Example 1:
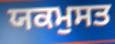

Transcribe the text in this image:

ਯਕਮੁਸਤ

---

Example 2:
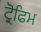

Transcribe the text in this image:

ਟ੍ਰੋਫਿਮ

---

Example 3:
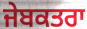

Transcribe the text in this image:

ਜੇਬਕਤਰਾ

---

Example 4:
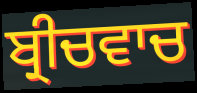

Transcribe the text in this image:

ਬ੍ਰੀਚਵਾਚ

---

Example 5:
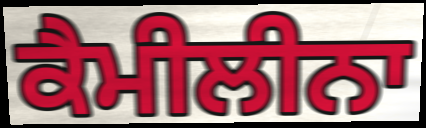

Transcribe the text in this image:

ਕੈਮੀਲੀਨਾ